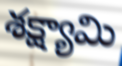
శక్ష్యామి